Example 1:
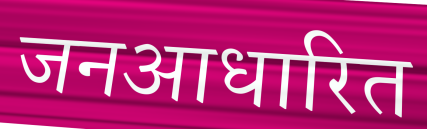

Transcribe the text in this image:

जनआधारित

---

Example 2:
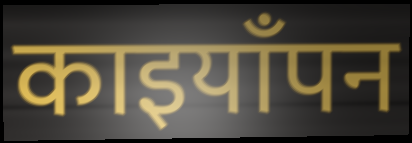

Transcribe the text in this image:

काइयाँपन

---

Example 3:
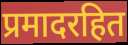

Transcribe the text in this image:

प्रमादरहित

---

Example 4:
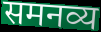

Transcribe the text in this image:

समनव्य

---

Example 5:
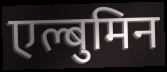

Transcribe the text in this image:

एल्बुमिन